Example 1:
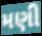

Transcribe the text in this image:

મણી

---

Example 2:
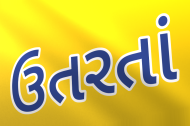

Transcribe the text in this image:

ઉતરતાં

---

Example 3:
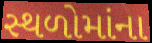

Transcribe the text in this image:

સ્થળોમાંના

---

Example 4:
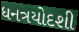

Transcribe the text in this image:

ધનત્રયોદશી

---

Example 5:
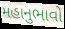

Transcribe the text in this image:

મહાનુભાવો